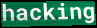
hacking